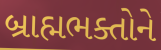
બ્રાહ્મભક્તોને